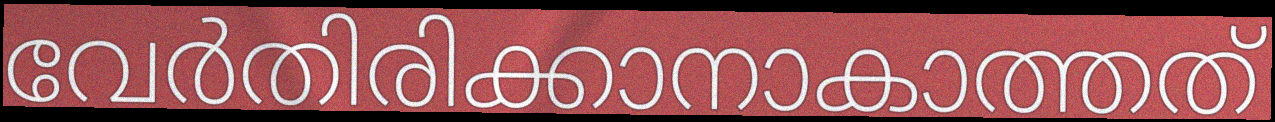
വേർതിരിക്കാനാകാത്തത്